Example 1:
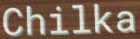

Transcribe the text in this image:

Chilka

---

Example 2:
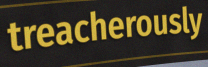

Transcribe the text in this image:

treacherously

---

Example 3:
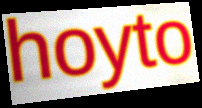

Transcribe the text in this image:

hoyto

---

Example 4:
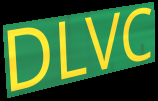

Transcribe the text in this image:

DLVC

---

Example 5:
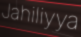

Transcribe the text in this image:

Jahiliyya